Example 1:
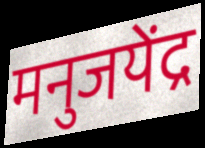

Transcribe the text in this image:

मनुजयेंद्र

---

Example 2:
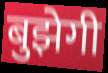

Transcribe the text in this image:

बुझेगी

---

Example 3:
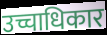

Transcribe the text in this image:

उच्चाधिकार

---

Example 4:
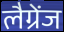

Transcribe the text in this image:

लैग्रेंज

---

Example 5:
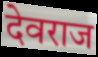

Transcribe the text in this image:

देवराज